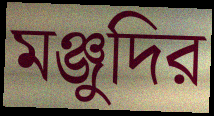
মঞ্জুদির